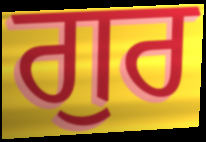
ਗੁਰ